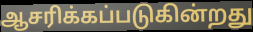
ஆசரிக்கப்படுகின்றது